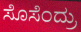
ಸೊಸೆಂದ್ರು